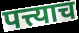
पत्त्याच